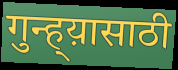
गुन्ह्य़ासाठी